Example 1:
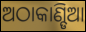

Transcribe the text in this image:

ଅଠାକାଣ୍ଡିଆ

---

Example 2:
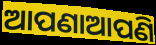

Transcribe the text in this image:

ଆପଣାଆପଣି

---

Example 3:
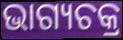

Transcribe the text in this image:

ଭାଗ୍ୟଚକ୍ର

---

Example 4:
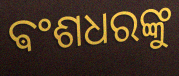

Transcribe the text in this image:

ଵଂଶଧରଙ୍କୁ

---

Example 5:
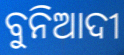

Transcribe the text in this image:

ବୁନିଆଦୀ